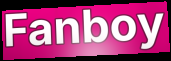
Fanboy